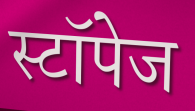
स्टॉपेज